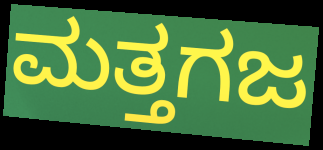
ಮತ್ತಗಜ